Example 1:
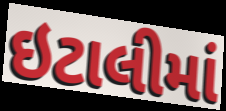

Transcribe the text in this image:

ઇટાલીમાં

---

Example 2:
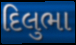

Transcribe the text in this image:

દિલુભા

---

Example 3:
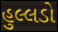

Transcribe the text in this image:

હુલ્લડો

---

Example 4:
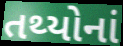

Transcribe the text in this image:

તથ્યોનાં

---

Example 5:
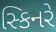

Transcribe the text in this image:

સ્કિનરે